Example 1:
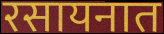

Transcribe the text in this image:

रसायनात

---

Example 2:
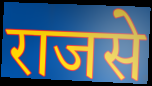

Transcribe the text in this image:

राजसे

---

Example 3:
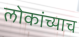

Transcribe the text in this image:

लोकांच्याच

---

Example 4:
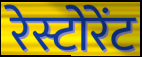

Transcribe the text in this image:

रेस्टोरेंट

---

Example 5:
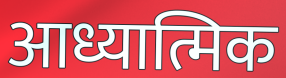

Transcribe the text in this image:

आध्यात्मिक